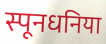
स्पूनधनिया